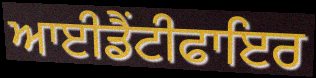
ਆਈਡੈਂਟੀਫਾਇਰ